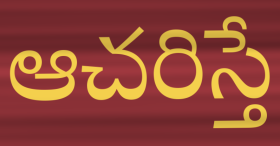
ఆచరిస్తే